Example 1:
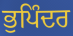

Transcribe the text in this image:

ਭੁਪਿੰਦਰ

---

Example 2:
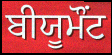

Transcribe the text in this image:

ਬੀਯੂਮੌਂਟ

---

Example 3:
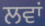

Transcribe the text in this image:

ਲਵਾਂ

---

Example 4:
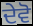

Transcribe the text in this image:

ਦੇਵੋ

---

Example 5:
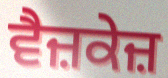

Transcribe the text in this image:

ਵੈਜ਼ਕੇਜ਼